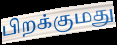
பிறக்குமது